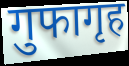
गुफागृह